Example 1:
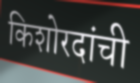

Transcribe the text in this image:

किशोरदांची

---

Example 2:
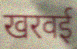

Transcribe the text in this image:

खरवई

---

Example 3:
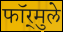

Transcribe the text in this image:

फॉर्मुले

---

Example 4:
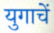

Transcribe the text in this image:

युगाचें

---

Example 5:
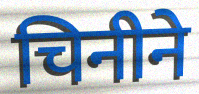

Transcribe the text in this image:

चिनीने